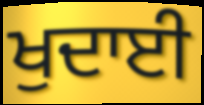
ਖੁਦਾਈ